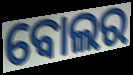
ବୋଲର